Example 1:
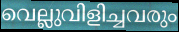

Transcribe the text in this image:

വെല്ലുവിളിച്ചവരും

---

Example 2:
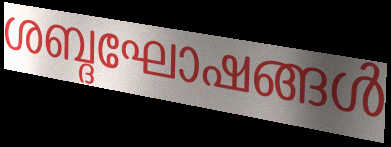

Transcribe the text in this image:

ശബ്ദഘോഷങ്ങൾ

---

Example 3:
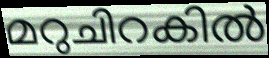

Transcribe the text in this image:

മറുചിറകിൽ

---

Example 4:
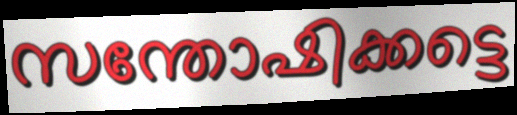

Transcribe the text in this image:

സന്തോഷിക്കട്ടെ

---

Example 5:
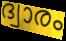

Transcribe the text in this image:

ദ്വാരം